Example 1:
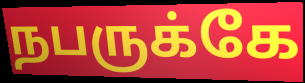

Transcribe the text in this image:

நபருக்கே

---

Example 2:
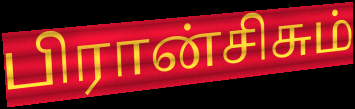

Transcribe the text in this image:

பிரான்சிசும்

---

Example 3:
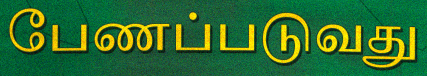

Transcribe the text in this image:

பேணப்படுவது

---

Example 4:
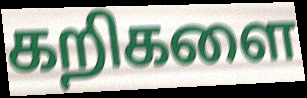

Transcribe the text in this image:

கறிகளை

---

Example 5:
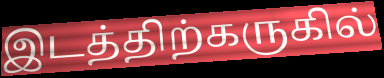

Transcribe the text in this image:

இடத்திற்கருகில்